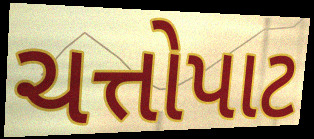
ચત્તોપાટ